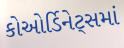
કોઓર્ડિનેટ્સમાં